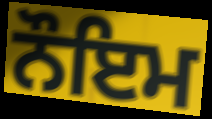
ਨੌਇਮ